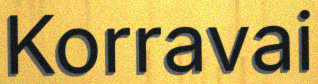
Korravai